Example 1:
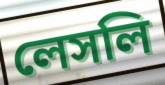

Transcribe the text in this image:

লেসলি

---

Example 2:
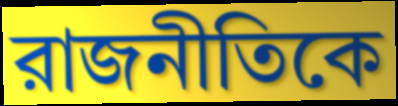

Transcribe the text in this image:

রাজনীতিকে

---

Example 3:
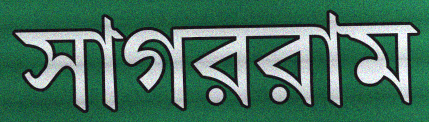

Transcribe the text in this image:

সাগররাম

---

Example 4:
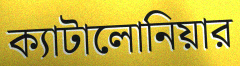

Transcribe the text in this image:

ক্যাটালোনিয়ার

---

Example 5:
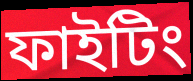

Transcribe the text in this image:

ফাইটিং